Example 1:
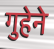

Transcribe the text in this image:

गुहेने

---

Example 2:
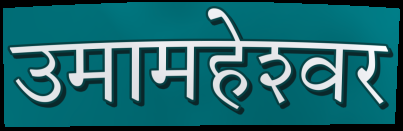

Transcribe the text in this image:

उमामहेश्वर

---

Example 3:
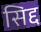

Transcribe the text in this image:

सिद्द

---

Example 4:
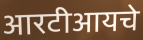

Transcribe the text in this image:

आरटीआयचे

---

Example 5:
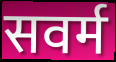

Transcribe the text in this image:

सवर्म